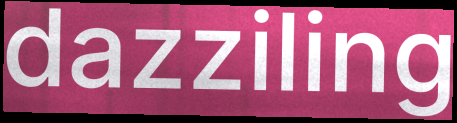
dazziling